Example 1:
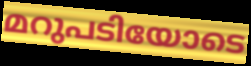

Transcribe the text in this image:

മറുപടിയോടെ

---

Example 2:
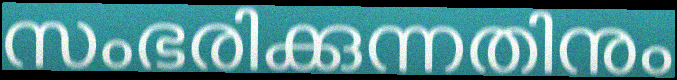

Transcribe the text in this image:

സംഭരിക്കുന്നതിനും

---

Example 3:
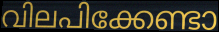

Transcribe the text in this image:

വിലപിക്കേണ്ടാ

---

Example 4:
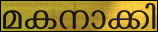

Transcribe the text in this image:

മകനാക്കി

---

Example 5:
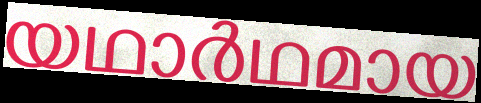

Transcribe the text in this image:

യഥാർഥമായ